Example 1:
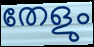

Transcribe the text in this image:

തേളും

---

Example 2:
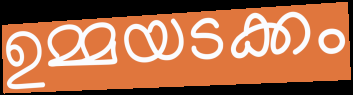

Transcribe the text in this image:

ഉമ്മയടക്കം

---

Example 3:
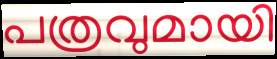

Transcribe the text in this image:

പത്രവുമായി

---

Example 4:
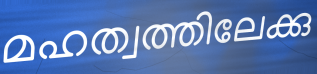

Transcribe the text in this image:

മഹത്വത്തിലേക്കു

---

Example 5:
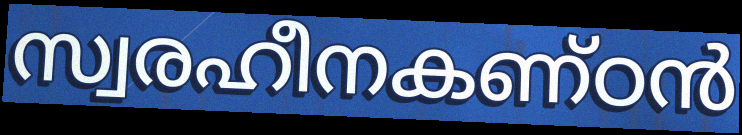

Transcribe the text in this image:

സ്വരഹീനകണ്ഠൻ